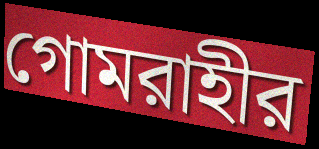
গোমরাহীর